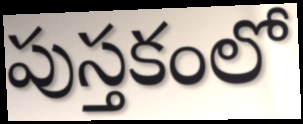
పుస్తకంలో